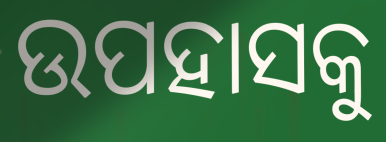
ଉପହାସକୁ